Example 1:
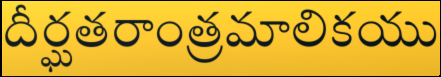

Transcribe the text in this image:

దీర్ఘతరాంత్రమాలికయు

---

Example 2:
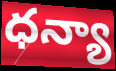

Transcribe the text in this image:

ధన్యా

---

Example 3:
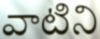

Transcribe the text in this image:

వాటిని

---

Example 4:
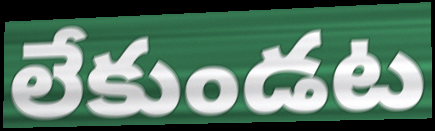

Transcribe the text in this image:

లేకుండట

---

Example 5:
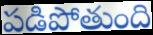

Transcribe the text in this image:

పడిపోతుంది